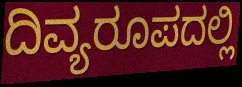
ದಿವ್ಯರೂಪದಲ್ಲಿ